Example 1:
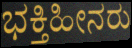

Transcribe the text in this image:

ಭಕ್ತಿಹೀನರು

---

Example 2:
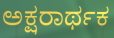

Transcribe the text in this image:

ಅಕ್ಷರಾರ್ಥಕ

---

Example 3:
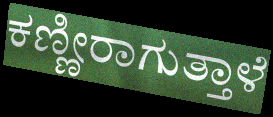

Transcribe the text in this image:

ಕಣ್ಣೀರಾಗುತ್ತಾಳೆ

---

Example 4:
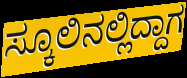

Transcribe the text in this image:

ಸ್ಕೂಲಿನಲ್ಲಿದ್ದಾಗ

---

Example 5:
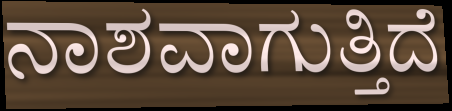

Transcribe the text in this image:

ನಾಶವಾಗುತ್ತಿದೆ